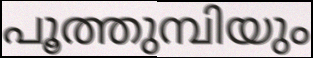
പൂത്തുമ്പിയും